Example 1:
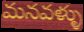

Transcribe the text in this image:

మనవళ్ళు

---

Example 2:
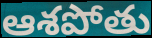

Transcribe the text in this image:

ఆశపోతు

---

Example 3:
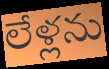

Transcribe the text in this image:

లేళ్లను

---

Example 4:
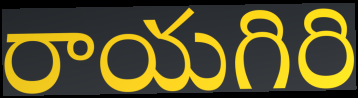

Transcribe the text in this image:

రాయగిరి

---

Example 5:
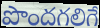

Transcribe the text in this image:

పొందగలిగే